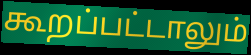
கூறப்பட்டாலும்